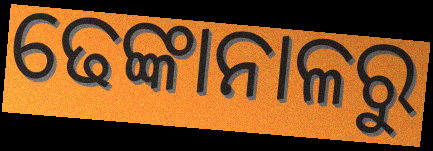
ଢେଙ୍କାନାଳରୁ